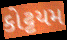
કોટ્ટયમ